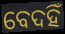
ବେଦହିଁ